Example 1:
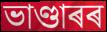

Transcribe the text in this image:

ভাণ্ডাৰৰ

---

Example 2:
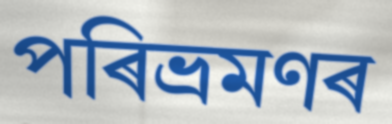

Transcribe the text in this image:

পৰিভ্ৰমণৰ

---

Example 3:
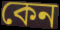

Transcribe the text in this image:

কেন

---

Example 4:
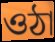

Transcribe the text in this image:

ওঠা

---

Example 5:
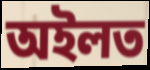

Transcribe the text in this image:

অইলত